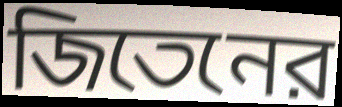
জিতেনের